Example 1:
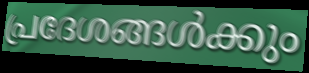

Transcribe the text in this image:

പ്രദേശങ്ങൾക്കും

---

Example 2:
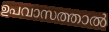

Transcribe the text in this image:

ഉപവാസത്താൽ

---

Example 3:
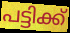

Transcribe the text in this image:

പട്ടിക്ക്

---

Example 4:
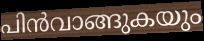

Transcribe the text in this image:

പിൻവാങ്ങുകയും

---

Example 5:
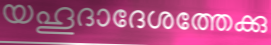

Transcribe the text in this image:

യഹൂദാദേശത്തേക്കു